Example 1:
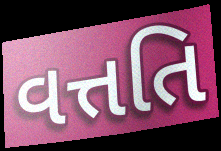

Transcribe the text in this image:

વત્તતિ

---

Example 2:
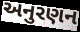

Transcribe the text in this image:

અનુરણન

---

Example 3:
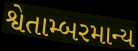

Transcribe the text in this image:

શ્વેતામ્બરમાન્ય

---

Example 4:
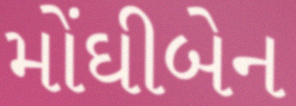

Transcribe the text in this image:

મોંઘીબેન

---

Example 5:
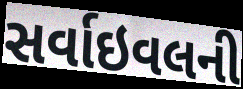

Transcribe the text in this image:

સર્વાઇવલની